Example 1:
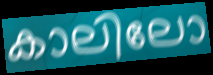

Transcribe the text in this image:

കാലിലോ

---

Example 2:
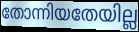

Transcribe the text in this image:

തോന്നിയതേയില്ല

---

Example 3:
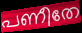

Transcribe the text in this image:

പണീതേ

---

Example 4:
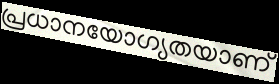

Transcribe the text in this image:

പ്രധാനയോഗ്യതയാണ്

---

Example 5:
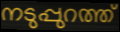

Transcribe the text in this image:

നടുപ്പുറത്ത്